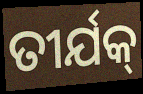
ତୀର୍ଯକ୍